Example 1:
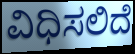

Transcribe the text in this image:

ವಿಧಿಸಲಿದೆ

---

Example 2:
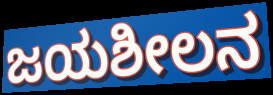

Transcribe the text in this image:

ಜಯಶೀಲನ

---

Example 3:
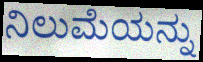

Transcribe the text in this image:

ನಿಲುಮೆಯನ್ನು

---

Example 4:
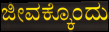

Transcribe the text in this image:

ಜೀವಕ್ಕೊಂದು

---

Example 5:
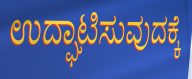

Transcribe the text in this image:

ಉದ್ಘಾಟಿಸುವುದಕ್ಕೆ